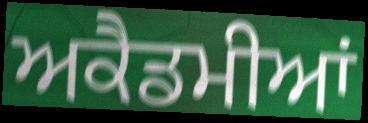
ਅਕੈਡਮੀਆਂ